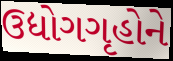
ઉદ્યોગગૃહોને